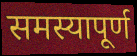
समस्यापूर्ण